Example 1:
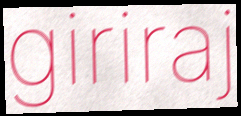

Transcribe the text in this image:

giriraj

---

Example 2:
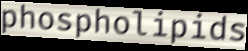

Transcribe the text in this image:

phospholipids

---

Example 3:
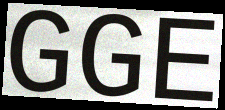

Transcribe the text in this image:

GGE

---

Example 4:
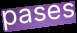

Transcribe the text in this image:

pases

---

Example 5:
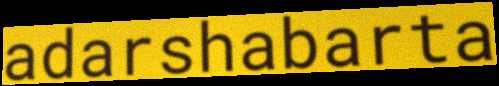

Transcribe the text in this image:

adarshabarta